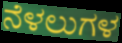
ನೆಳಲುಗಳ